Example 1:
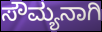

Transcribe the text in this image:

ಸೌಮ್ಯನಾಗಿ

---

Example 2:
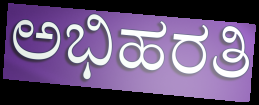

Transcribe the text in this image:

ಅಭಿಹರತಿ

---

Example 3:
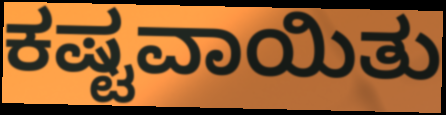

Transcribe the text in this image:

ಕಷ್ಟವಾಯಿತು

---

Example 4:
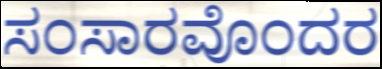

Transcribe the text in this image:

ಸಂಸಾರವೊಂದರ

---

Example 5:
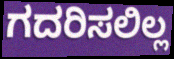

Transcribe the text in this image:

ಗದರಿಸಲಿಲ್ಲ